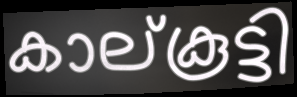
കാല്കൂട്ടി